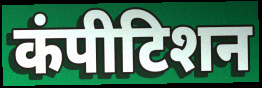
कंपीटिशन